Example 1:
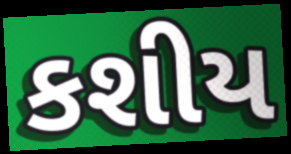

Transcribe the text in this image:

કશીય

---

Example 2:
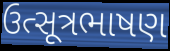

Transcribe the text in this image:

ઉત્સૂત્રભાષણ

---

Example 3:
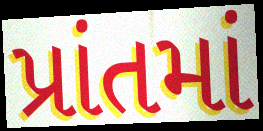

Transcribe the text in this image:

પ્રાંતમાં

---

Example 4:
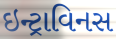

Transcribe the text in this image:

ઇન્ટ્રાવિનસ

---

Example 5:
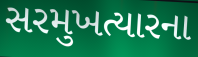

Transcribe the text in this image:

સરમુખત્યારના